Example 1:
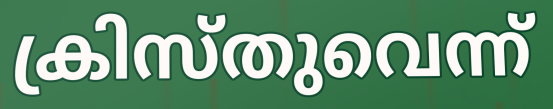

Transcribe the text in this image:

ക്രിസ്തുവെന്ന്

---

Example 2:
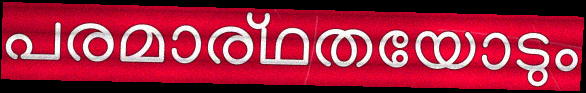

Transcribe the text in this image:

പരമാര്ഥതയോടും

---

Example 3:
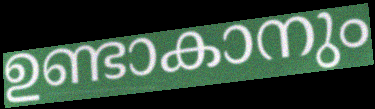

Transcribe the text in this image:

ഉണ്ടാകാനും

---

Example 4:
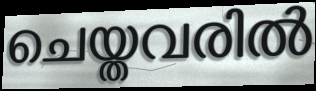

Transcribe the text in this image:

ചെയ്തവരിൽ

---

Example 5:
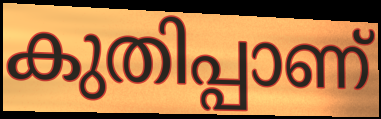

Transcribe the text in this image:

കുതിപ്പാണ്